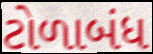
ટોળાબંધ